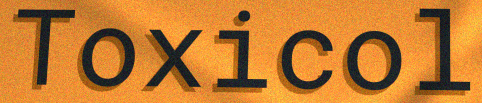
Toxicol